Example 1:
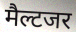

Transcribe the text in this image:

मैल्टजर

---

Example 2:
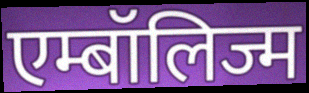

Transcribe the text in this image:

एम्बॉलिज्म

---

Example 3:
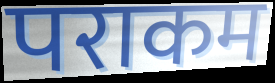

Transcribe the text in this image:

पराकम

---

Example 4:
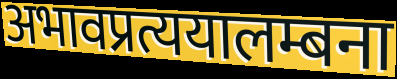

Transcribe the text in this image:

अभावप्रत्ययालम्बना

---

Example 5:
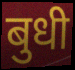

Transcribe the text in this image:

बुधी